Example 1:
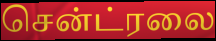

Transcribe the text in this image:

சென்ட்ரலை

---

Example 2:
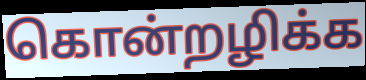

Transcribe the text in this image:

கொன்றழிக்க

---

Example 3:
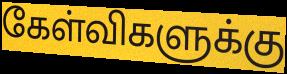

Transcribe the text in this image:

கேள்விகளுக்கு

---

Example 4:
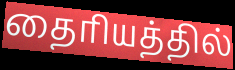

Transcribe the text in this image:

தைரியத்தில்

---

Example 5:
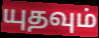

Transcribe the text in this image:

யுதவும்